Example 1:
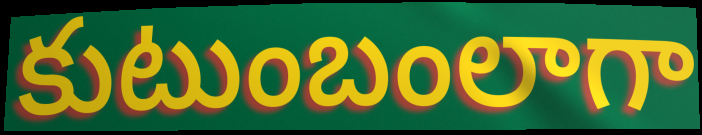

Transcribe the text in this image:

కుటుంబంలాగా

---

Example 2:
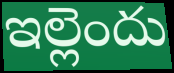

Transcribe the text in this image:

ఇల్లెందు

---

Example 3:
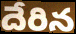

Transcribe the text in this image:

దేరిన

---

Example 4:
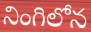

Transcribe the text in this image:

నింగిలోన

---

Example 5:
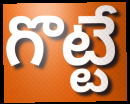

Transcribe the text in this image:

గొట్టే